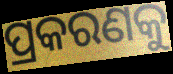
ପ୍ରକରଣକୁ